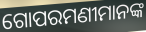
ଗୋପରମଣୀମାନଙ୍କ